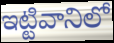
ఇట్టివానిలో